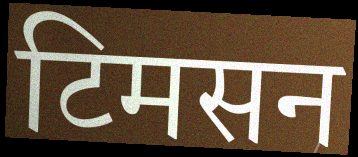
टिमसन